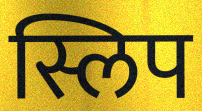
स्लिप